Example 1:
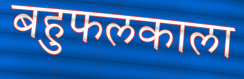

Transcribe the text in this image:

बहुफलकाला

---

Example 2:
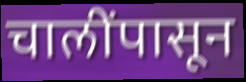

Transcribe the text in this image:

चालींपासून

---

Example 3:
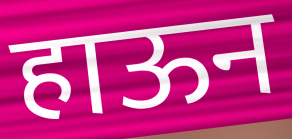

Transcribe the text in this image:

हाऊन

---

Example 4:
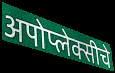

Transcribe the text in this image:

अपोप्लेक्सीचे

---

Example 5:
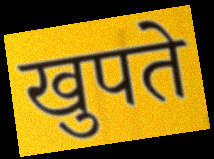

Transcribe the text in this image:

खुपते